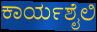
ಕಾರ್ಯಶೈಲಿ